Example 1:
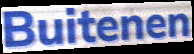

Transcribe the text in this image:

Buitenen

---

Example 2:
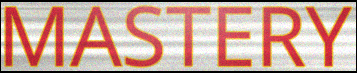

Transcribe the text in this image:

MASTERY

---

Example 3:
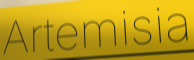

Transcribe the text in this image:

Artemisia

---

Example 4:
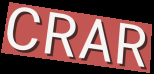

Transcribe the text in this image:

CRAR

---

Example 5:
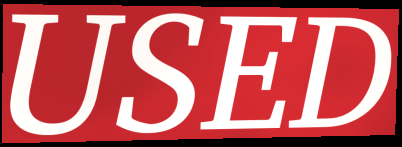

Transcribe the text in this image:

USED